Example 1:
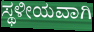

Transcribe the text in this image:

ಸ್ಥಳೀಯವಾಗಿ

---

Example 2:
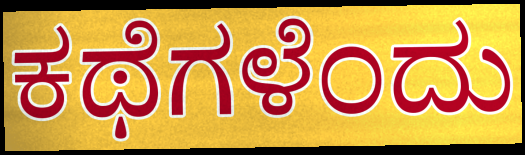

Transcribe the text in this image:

ಕಥೆಗಳೆಂದು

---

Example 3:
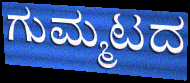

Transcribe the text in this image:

ಗುಮ್ಮಟದ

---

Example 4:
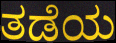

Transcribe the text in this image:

ತಡೆಯ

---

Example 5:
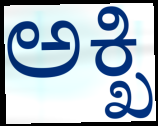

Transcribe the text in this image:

ಅಕ್ಖಿ